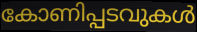
കോണിപ്പടവുകൾ